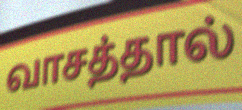
வாசத்தால்